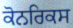
ਕੋਨਰਿਕਸ